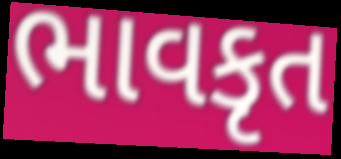
ભાવકૃત